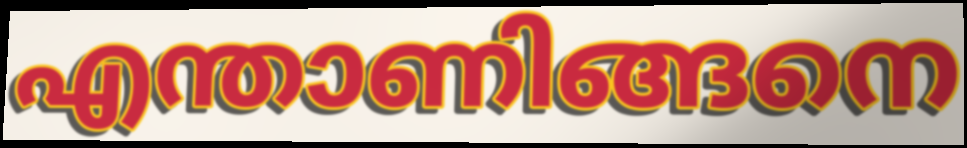
എന്താണിങ്ങനെ